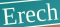
Erech